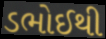
ડભોઈથી